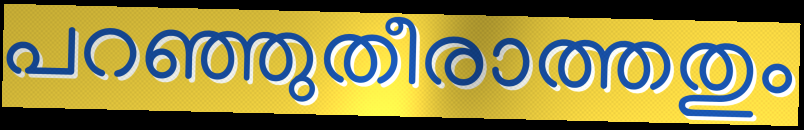
പറഞ്ഞുതീരാത്തതും